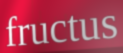
fructus